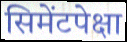
सिमेंटपेक्षा